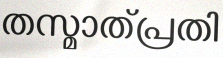
തസ്മാത്പ്രതി